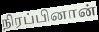
நிரப்பினான்